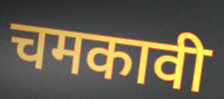
चमकावी